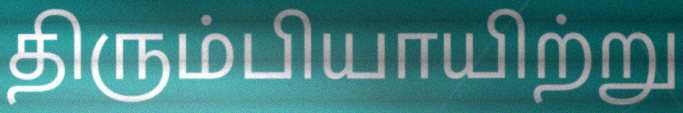
திரும்பியாயிற்று